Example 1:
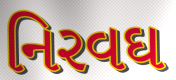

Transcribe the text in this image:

નિરવઘ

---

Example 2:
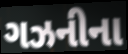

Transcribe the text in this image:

ગઝનીના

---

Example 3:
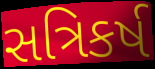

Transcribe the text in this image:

સત્રિકર્ષ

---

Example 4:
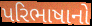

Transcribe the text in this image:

પરિભાષાનો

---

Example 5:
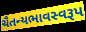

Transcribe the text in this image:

ચૈતન્યભાવસ્વરૂપ